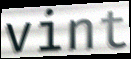
vint